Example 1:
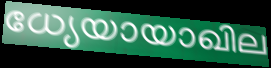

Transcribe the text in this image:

ധ്യേയായാഖില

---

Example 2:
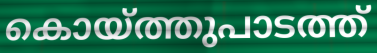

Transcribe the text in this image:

കൊയ്ത്തുപാടത്ത്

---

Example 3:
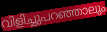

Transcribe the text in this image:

വിളിച്ചുപറഞ്ഞാലും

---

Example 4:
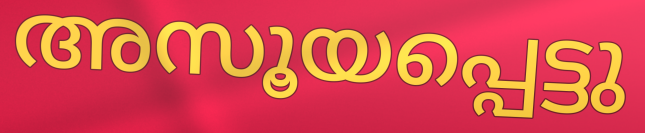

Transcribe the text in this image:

അസൂയപ്പെട്ടു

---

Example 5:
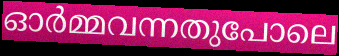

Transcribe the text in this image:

ഓർമ്മവന്നതുപോലെ